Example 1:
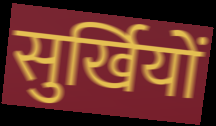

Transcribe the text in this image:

सुर्खियों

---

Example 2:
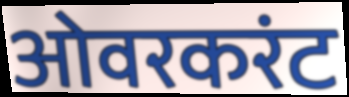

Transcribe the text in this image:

ओवरकरंट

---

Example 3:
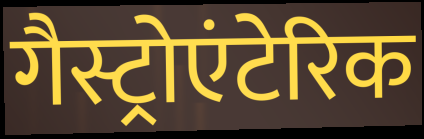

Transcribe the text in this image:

गैस्ट्रोएंटेरिक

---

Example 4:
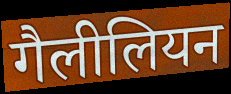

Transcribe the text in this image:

गैलीलियन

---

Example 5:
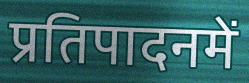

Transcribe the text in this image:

प्रतिपादनमें